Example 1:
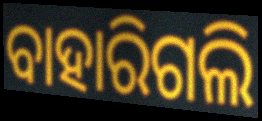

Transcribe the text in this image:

ବାହାରିଗଲି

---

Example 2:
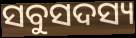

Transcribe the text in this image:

ସବୁସଦସ୍ୟ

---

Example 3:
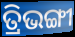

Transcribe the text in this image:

ତ୍ରିଭଙ୍ଗୀ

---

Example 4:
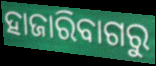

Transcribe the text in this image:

ହାଜାରିବାଗରୁ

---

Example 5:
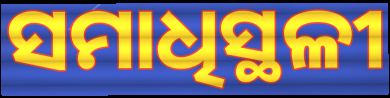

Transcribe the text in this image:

ସମାଧିସ୍ଥଳୀ